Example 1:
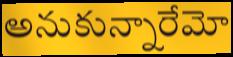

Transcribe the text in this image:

అనుకున్నారేమో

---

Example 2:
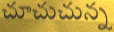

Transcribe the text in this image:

చూచుచున్న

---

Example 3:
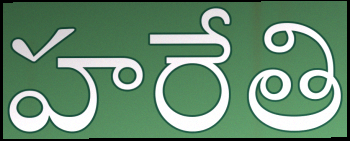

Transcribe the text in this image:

హరేతి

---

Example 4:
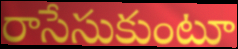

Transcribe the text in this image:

రాసేసుకుంటూ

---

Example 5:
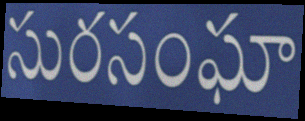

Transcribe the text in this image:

సురసంఘా